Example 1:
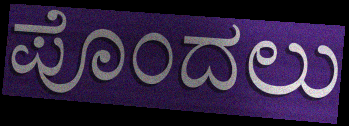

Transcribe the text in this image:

ಪೊಂದಲು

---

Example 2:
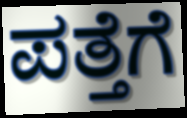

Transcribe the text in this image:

ಪತ್ತೆಗೆ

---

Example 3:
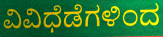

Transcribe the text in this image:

ವಿವಿಧೆಡೆಗಳಿಂದ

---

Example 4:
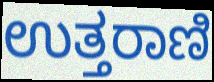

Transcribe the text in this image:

ಉತ್ತರಾಣಿ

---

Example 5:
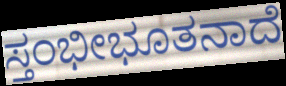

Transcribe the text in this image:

ಸ್ತಂಭೀಭೂತನಾದೆ